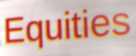
Equities